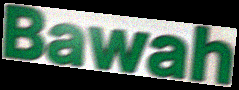
Bawah